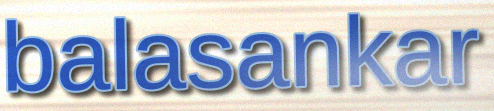
balasankar